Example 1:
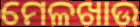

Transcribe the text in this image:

ମେଳଖାଉ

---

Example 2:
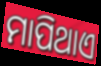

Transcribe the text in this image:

ମାପିଥାଏ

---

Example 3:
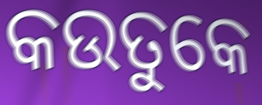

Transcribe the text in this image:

କଉତୁକେ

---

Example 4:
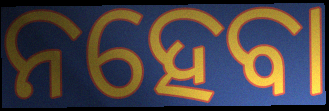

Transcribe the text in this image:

ନହେବା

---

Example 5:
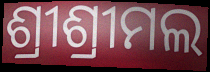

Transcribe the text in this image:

ଶ୍ରୀଶ୍ରୀମଲ